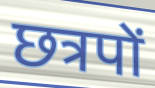
छत्रपों